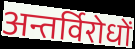
अन्तर्विरोधों